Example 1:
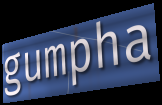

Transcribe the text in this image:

gumpha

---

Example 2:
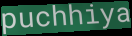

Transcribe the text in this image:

puchhiya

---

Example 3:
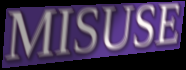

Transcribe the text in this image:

MISUSE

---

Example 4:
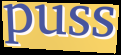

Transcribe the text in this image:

puss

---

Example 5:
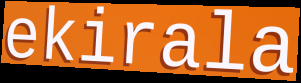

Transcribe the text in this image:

ekirala